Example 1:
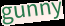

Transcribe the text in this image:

gunny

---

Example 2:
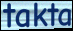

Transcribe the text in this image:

takta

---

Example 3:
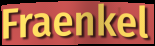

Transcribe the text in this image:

Fraenkel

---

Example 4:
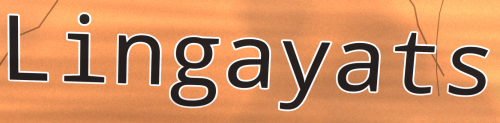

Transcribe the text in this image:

Lingayats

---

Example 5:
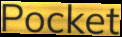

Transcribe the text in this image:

Pocket